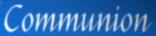
Communion